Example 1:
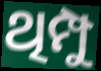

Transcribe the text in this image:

ଥିମ୍ପୁ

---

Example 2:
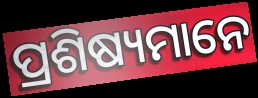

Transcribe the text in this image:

ପ୍ରଶିଷ୍ୟମାନେ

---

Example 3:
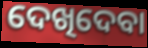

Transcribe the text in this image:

ଦେଖିଦେବା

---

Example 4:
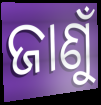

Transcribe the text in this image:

ଜାଣୁଁ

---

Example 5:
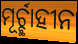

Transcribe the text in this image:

ମୂର୍ଚ୍ଛାହୀନ